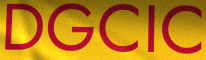
DGCIC